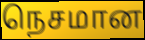
நெசமான